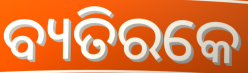
ବ୍ୟତିରକେ